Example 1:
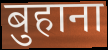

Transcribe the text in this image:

बुहाना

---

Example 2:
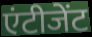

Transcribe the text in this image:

एंटीजेंट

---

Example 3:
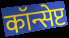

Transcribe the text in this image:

कॉन्सेप्ट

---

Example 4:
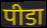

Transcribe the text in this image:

पीडा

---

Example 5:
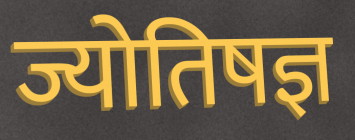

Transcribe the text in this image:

ज्योतिषज्ञ